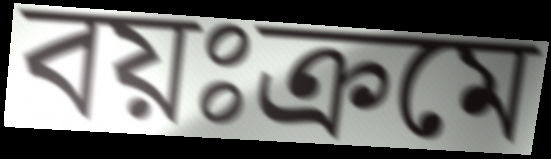
বয়ঃক্রমে